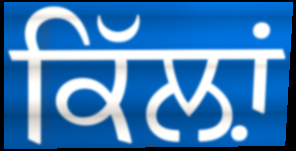
ਕਿੱਲ਼ਾਂ